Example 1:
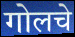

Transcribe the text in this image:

गोलचे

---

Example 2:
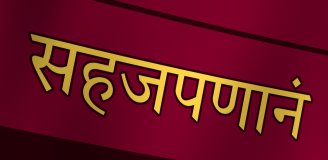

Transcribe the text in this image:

सहजपणानं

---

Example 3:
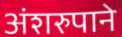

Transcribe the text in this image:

अंशरुपाने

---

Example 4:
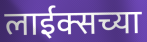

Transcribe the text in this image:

लाईक्सच्या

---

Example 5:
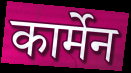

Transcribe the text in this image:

कार्मेन